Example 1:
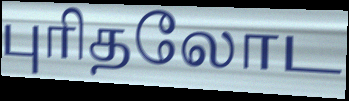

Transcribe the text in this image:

புரிதலோட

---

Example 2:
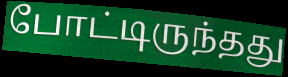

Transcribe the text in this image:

போட்டிருந்தது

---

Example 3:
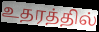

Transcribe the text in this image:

உதரத்தில்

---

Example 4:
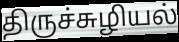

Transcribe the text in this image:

திருச்சுழியல்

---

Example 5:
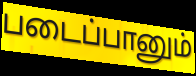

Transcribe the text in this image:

படைப்பானும்